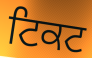
ਟਿਕਟ